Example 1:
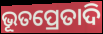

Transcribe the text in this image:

ଭୂତପ୍ରେତାଦି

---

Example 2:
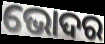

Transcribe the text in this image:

ଭୋଦର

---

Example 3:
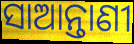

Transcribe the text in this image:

ସାଆନ୍ତାଣୀ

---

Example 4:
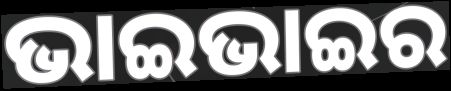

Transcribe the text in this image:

ଭାଇଭାଇର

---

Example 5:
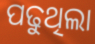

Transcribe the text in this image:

ପଢୁଥିଲା